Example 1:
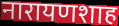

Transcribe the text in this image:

नारायणशाह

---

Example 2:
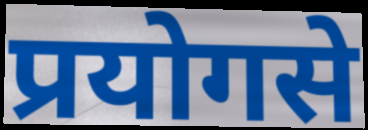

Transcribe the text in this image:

प्रयोगसे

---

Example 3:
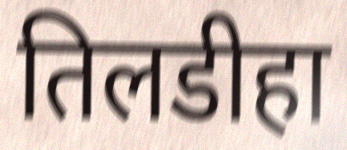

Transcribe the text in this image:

तिलडीहा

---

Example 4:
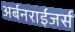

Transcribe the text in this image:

अर्बनराईजर्स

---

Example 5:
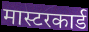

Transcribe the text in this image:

मास्टरकार्ड